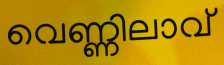
വെണ്ണിലാവ്